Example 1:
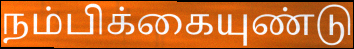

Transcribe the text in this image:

நம்பிக்கையுண்டு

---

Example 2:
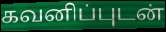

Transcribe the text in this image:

கவனிப்புடன்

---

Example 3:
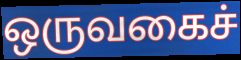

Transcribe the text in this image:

ஒருவகைச்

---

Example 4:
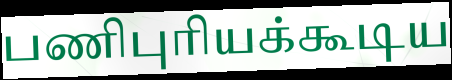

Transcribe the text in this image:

பணிபுரியக்கூடிய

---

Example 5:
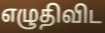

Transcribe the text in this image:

எழுதிவிட